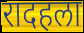
रादहला